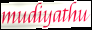
mudiyathu